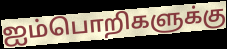
ஐம்பொறிகளுக்கு